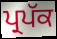
ਪ੍ਰਪੱਕ